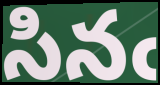
సినఁ